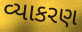
વ્યાકરણ